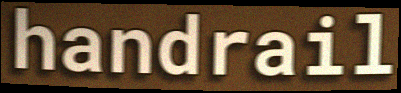
handrail